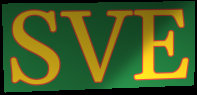
SVE